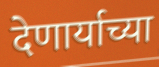
देणार्याच्या